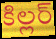
కిల్లర్